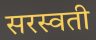
सरस्वती